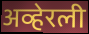
अव्हेरली